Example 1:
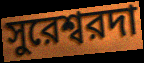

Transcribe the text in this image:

সুরেশ্বরদা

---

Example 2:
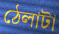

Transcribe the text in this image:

ঠেলাটা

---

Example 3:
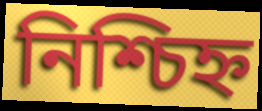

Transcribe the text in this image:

নিশ্চিহ্ন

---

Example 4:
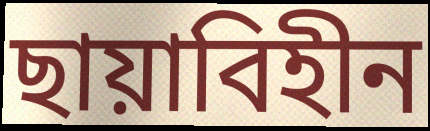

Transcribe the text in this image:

ছায়াবিহীন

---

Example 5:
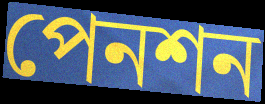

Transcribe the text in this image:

পেনশন